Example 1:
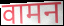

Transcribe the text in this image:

वामन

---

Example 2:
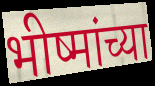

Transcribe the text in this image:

भीष्मांच्या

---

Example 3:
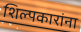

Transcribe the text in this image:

शिल्पकारांना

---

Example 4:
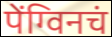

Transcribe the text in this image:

पेंग्विनचं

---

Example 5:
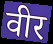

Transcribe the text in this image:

वीर